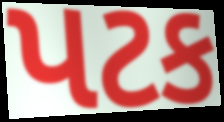
પટક